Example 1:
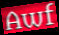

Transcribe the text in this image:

Awf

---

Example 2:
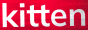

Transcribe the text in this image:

kitten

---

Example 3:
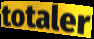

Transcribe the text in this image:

totaler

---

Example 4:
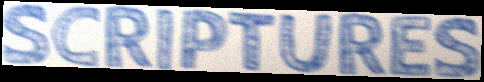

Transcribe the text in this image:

SCRIPTURES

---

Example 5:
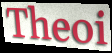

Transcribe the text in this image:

Theoi